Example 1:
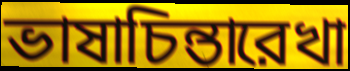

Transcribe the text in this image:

ভাষাচিন্তারেখা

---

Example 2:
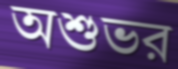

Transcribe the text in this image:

অশুভর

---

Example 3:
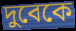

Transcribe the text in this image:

দুবেকে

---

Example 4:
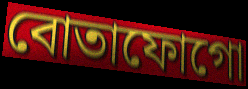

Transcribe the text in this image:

বোতাফোগো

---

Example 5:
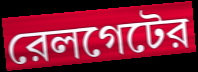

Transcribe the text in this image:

রেলগেটের